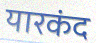
यारकंद